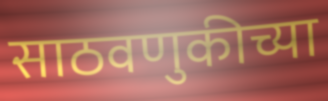
साठवणुकीच्या